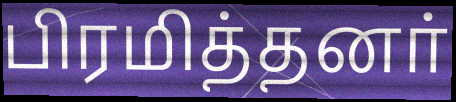
பிரமித்தனர்